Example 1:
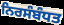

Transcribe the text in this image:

ਨਿਰਸੰਬੰਧਤ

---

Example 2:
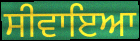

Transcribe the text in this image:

ਸੀਵਾਇਆ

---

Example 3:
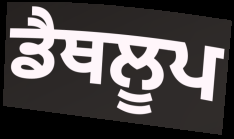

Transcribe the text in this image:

ਡੈਥਲੂਪ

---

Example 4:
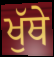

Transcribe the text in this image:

ਖੁੱਥੇ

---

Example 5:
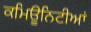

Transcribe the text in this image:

ਕਮਿਊਨਿਟੀਆਂ